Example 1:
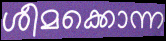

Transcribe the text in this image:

ശീമക്കൊന്ന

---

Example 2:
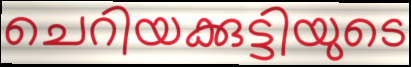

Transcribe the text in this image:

ചെറിയക്കുട്ടിയുടെ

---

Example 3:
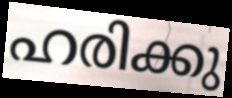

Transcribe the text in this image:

ഹരിക്കു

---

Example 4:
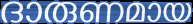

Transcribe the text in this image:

ദാരുണമായ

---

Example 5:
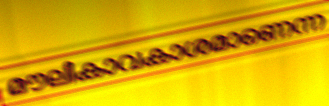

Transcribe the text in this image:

മൗലികാവകാശമാണെന്ന